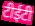
टीईटी